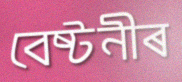
বেষ্টনীৰ